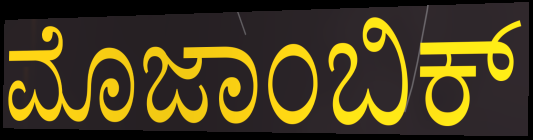
ಮೊಜಾಂಬಿಕ್